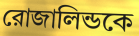
রোজালিন্ডকে